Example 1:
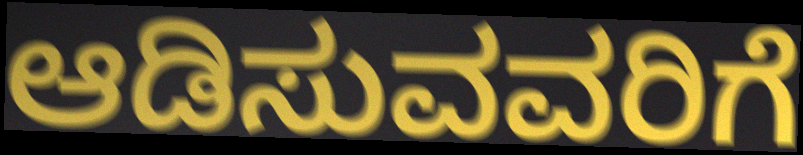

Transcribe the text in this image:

ಆಡಿಸುವವರಿಗೆ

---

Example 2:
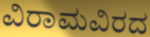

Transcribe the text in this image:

ವಿರಾಮವಿರದ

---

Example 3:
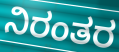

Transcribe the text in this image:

ನಿರಂತರ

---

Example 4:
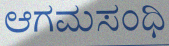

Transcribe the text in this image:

ಆಗಮಸಂಧಿ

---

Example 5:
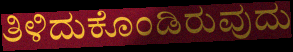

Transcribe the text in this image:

ತಿಳಿದುಕೊಂಡಿರುವುದು